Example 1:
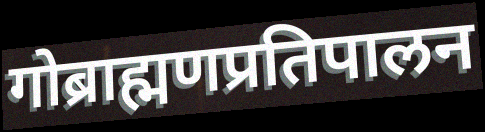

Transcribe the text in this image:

गोब्राह्मणप्रतिपालन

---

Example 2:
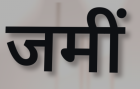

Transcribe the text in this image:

जमीं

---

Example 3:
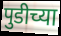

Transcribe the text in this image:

पुडीच्या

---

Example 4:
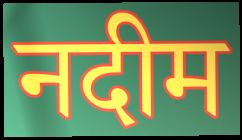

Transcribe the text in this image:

नदीम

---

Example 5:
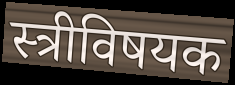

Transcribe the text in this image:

स्त्रीविषयक